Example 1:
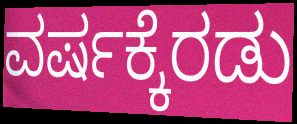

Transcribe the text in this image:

ವರ್ಷಕ್ಕೆರಡು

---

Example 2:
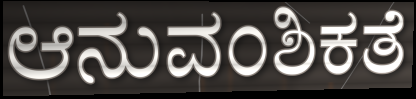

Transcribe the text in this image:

ಆನುವಂಶಿಕತೆ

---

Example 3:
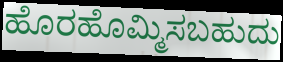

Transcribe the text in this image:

ಹೊರಹೊಮ್ಮಿಸಬಹುದು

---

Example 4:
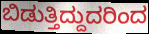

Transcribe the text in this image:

ಬಿಡುತ್ತಿದ್ದುದರಿಂದ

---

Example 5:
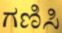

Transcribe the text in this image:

ಗಣಿಸಿ